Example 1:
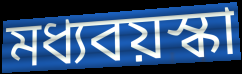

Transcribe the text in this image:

মধ্যবয়স্কা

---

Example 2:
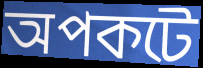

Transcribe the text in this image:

অপকটে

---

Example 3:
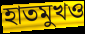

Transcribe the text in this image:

হাতমুখও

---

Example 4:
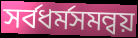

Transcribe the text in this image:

সর্বধর্মসমন্বয়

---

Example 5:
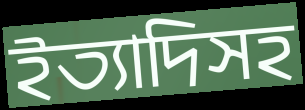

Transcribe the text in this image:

ইত্যাদিসহ